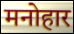
मनोहार